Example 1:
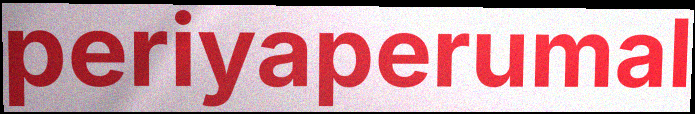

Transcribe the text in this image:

periyaperumal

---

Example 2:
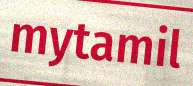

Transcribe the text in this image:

mytamil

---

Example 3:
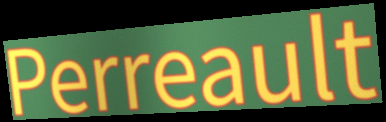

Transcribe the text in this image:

Perreault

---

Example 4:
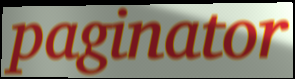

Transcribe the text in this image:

paginator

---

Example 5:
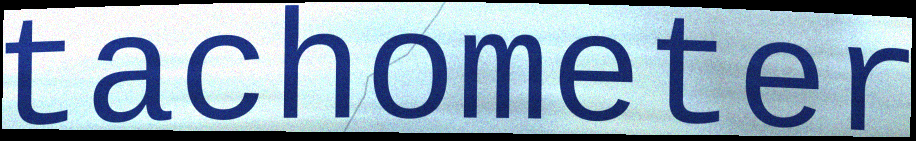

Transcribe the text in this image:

tachometer